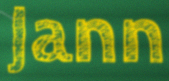
Jann